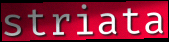
striata